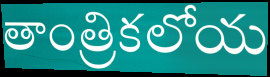
తాంత్రికలోయ